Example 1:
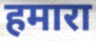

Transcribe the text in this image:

हमारा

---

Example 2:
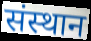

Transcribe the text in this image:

संस्थान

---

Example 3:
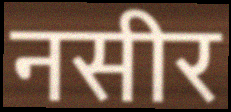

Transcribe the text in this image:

नसीर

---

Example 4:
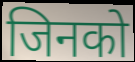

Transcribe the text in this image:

जिनको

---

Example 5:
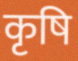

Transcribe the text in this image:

कृषि